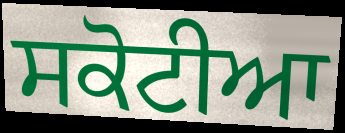
ਸਕੋਟੀਆ